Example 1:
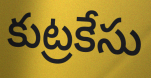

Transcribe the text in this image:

కుట్రకేసు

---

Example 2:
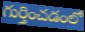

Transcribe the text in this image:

గుర్తించడంలో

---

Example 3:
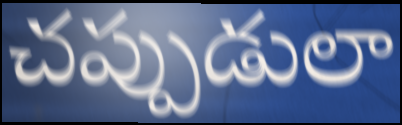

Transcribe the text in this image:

చప్పుడులా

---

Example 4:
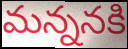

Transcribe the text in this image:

మన్ననకి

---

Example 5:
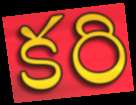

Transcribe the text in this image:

కరి